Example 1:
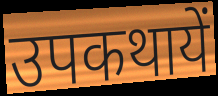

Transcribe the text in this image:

उपकथायें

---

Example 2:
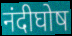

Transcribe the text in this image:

नंदीघोष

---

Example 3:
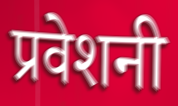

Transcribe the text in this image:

प्रवेशनी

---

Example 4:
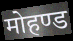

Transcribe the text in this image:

मोहण्ड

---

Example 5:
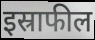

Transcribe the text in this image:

इस्राफील